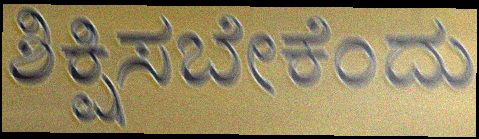
ಶಿಕ್ಷಿಸಬೇಕೆಂದು